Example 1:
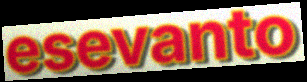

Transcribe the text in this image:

esevanto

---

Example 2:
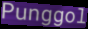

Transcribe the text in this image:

Punggol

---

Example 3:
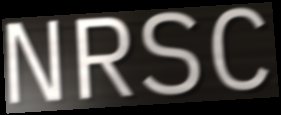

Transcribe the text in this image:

NRSC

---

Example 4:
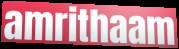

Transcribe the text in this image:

amrithaam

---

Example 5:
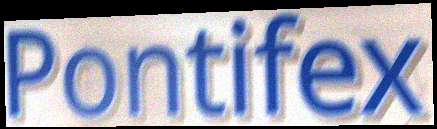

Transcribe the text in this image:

Pontifex